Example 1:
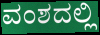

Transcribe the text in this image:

ವಂಶದಲ್ಲಿ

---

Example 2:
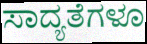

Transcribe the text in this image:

ಸಾದ್ಯತೆಗಳೂ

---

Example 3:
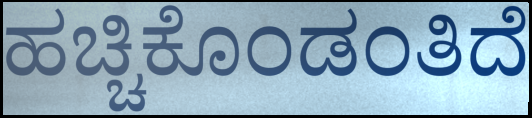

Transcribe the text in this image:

ಹಚ್ಚಿಕೊಂಡಂತಿದೆ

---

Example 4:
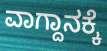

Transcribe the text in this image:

ವಾಗ್ದಾನಕ್ಕೆ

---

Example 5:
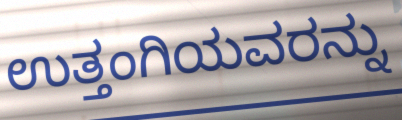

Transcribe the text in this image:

ಉತ್ತಂಗಿಯವರನ್ನು